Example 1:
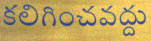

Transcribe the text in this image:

కలిగించవద్దు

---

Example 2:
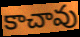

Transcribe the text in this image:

కాచావు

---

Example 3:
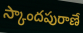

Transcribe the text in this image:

స్కాందపురాణే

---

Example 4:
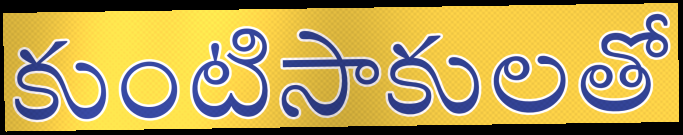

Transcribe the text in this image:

కుంటిసాకులతో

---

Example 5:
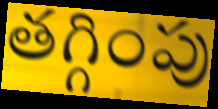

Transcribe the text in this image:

తగ్గింపు